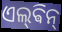
ଏଲ୍‌ଵିନ୍